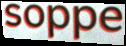
soppe